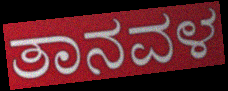
ತಾನವಳ